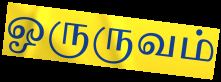
ஓருருவம்